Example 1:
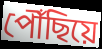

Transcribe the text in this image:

পৌঁছিয়ে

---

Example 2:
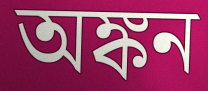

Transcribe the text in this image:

অঙ্কন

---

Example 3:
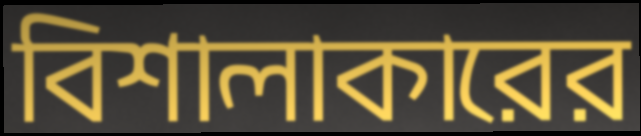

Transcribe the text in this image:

বিশালাকারের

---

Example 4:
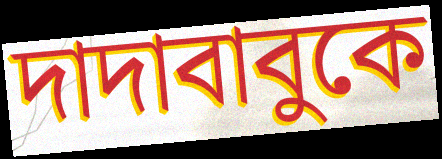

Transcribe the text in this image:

দাদাবাবুকে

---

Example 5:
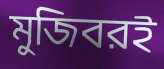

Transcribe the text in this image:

মুজিবরই